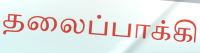
தலைப்பாக்கி